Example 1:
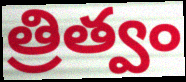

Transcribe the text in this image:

త్రిత్వం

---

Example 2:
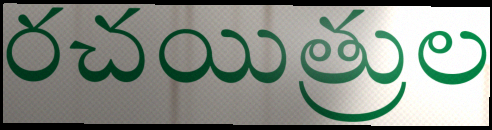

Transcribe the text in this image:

రచయిత్రుల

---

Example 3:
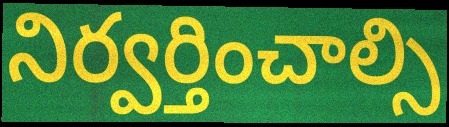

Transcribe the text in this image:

నిర్వర్తించాల్సి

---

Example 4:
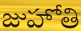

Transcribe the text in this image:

జుహోతి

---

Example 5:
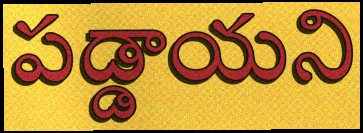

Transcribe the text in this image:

పడ్డాయని